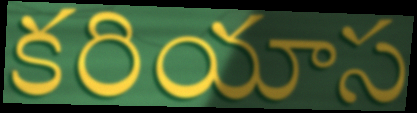
కరియాస